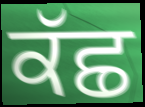
ਕੱਛ